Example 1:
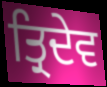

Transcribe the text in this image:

ਤ੍ਰਿਦੇਵ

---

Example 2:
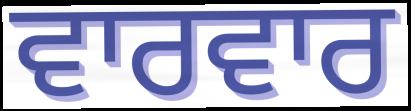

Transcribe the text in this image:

ਵਾਰਵਾਰ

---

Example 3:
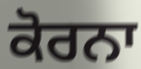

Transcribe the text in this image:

ਕੋਰਨਾ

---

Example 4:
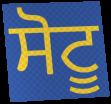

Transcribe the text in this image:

ਸੋਟੂ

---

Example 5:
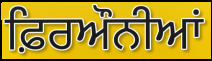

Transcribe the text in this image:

ਫ਼ਿਰਔਨੀਆਂ